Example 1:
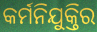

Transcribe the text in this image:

କର୍ମନିଯୁକ୍ତିର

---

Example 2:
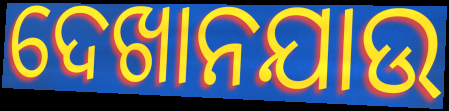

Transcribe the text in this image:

ଦେଖାନଯାଉ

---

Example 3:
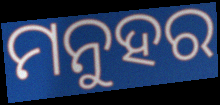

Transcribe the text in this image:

ମନୁହର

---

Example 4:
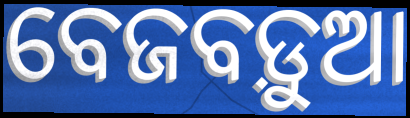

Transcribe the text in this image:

ବେଜବଡ଼ୁଆ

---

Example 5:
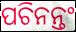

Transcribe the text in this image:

ପଚିନନ୍ତଂ